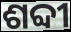
ଶବ୍ଦୀ